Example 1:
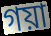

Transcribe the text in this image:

গয়া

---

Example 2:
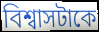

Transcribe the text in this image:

বিশ্বাসটাকে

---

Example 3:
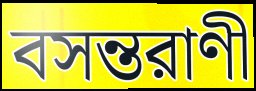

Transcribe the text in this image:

বসন্তরাণী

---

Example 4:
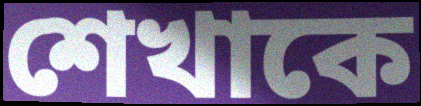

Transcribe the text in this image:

শেখাকে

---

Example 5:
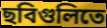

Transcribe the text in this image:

ছবিগুলিতে